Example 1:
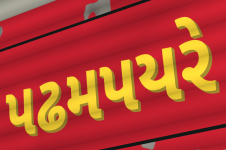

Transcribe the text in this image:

પઢમપયરે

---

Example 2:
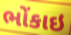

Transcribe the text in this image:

ભોંકાઇ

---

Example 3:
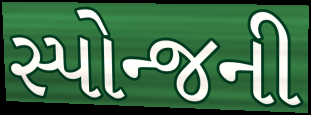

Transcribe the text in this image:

સ્પોન્જની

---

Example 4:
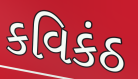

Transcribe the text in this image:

કવિકંઠ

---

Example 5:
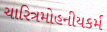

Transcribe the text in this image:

ચારિત્રમોહનીયકર્મ